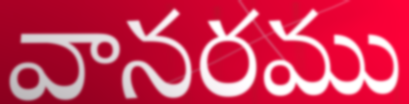
వానరము